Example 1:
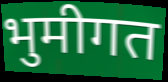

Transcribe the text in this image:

भुमीगत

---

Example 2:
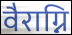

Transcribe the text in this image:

वैराग्नि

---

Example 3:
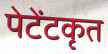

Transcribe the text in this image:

पेटेंटकृत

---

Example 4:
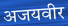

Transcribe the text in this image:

अजयवीर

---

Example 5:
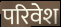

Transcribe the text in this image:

परिवेश